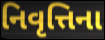
નિવૃત્તિના